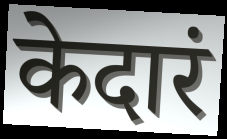
केदारं